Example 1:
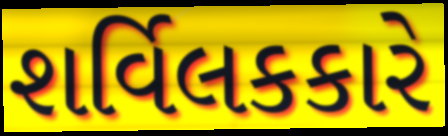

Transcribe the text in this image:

શર્વિલકકારે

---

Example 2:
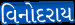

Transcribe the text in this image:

વિનોદરાય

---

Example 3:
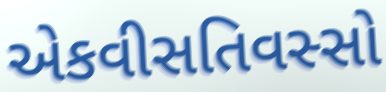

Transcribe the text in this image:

એકવીસતિવસ્સો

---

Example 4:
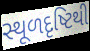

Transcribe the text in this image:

સ્થૂળદૃષ્ટિથી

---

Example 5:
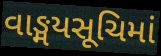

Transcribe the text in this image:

વાઙ્મયસૂચિમાં